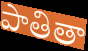
పాతితా